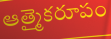
ఆత్మైకరూపం